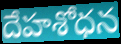
దేహశోధన